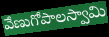
వేణుగోపాలస్వామి